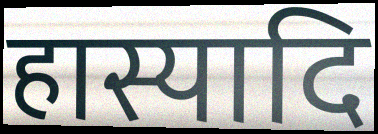
हास्यादि